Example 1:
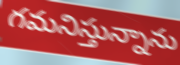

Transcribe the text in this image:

గమనిస్తున్నాను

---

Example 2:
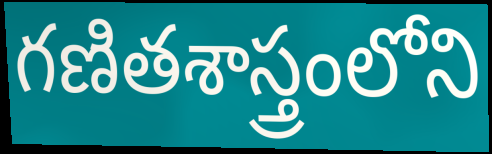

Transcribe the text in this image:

గణితశాస్త్రంలోని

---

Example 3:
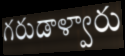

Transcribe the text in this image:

గరుడాళ్వారు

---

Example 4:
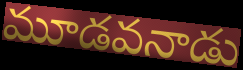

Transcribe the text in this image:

మూడవనాడు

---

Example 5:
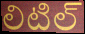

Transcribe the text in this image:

లిటిల్